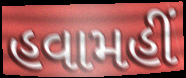
હવામહીં